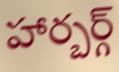
హార్బర్గ్